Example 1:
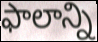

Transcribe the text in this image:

ఫాలాన్ని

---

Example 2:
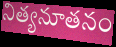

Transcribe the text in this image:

నిత్యనూతనం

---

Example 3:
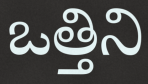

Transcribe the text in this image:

ఒత్తిని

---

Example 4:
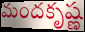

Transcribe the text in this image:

మందకృష్ణ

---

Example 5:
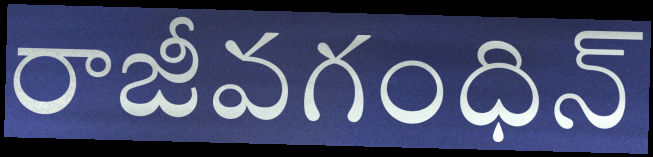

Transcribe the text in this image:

రాజీవగంధిన్